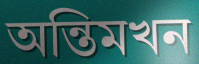
অন্তিমখন